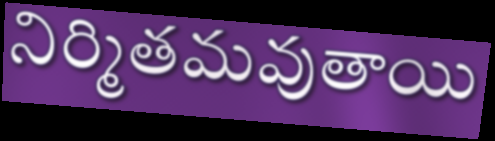
నిర్మితమవుతాయి